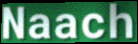
Naach